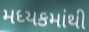
મધ્યકમાંથી